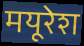
मयूरेश